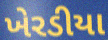
ખેરડીયા